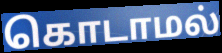
கொடாமல்